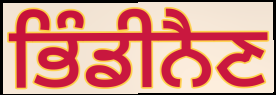
ਭਿੰਡੀਨੈਣ